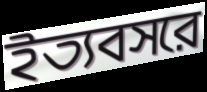
ইত্যবসরে